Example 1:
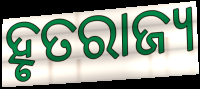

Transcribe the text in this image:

ହୃତରାଜ୍ୟ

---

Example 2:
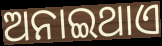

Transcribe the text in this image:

ଅନାଇଥାଏ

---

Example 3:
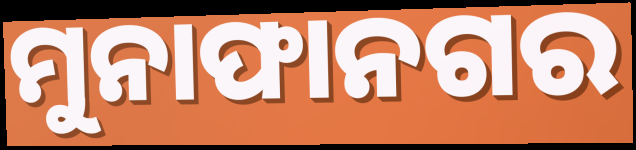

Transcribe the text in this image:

ମୁନାଫାନଗର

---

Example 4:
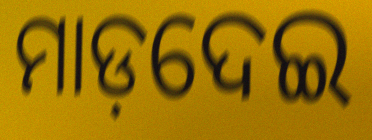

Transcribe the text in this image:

ମାଡ଼ଦେଇ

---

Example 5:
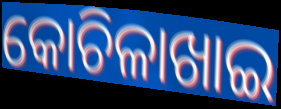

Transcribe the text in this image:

କୋଚିଳାଖାଇ